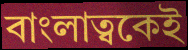
বাংলাত্বকেই